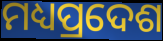
ମଧ୍ୟପ୍ରଦେଶ